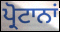
ਪ੍ਰੋਟਾਨਾਂ